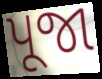
પૂજા